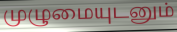
முழுமையுடனும்